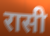
रासी